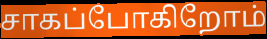
சாகப்போகிறோம்